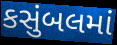
કસુંબલમાં